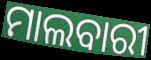
ମାଲବାରୀ